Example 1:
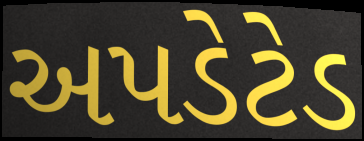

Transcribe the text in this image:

અપડેટેડ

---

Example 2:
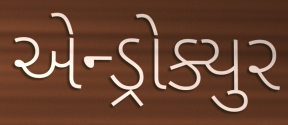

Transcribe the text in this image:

એન્ડ્રોક્યુર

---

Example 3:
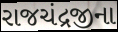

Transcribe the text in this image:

રાજચંદ્રજીના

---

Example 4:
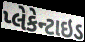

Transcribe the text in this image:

પ્લેકેન્ટાઇડ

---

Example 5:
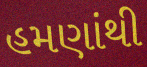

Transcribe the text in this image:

હમણાંથી